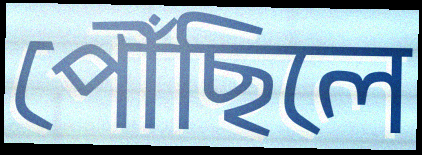
পৌঁছিলে